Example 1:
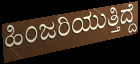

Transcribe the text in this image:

ಹಿಂಜರಿಯುತ್ತಿದ್ದೆ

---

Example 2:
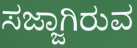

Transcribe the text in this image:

ಸಜ್ಜಾಗಿರುವ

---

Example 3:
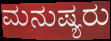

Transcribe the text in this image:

ಮನುಷ್ಯರು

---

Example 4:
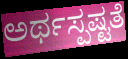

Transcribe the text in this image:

ಅರ್ಥಸ್ಪಷ್ಟತೆ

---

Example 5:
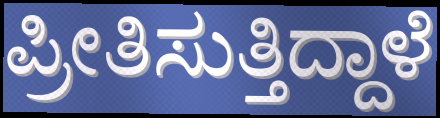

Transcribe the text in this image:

ಪ್ರೀತಿಸುತ್ತಿದ್ದಾಳೆ